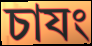
চাযং